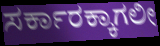
ಸರ್ಕಾರಕ್ಕಾಗಲೀ